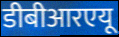
डीबीआरएयू